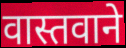
वास्तवाने